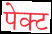
पेक्ट